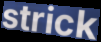
strick